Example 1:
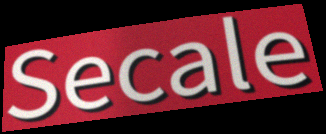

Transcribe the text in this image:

Secale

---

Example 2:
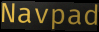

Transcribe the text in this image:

Navpad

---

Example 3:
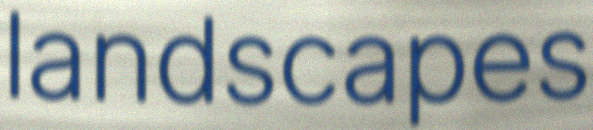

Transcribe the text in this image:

landscapes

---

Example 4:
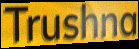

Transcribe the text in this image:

Trushna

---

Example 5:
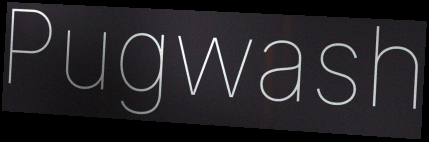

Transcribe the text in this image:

Pugwash